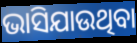
ଭାସିଯାଉଥିବା